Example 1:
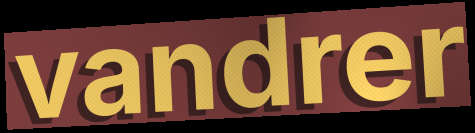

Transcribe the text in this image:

vandrer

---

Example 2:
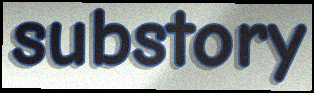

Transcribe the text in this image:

substory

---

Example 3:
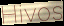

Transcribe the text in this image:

Hivos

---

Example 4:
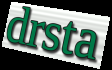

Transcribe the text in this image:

drsta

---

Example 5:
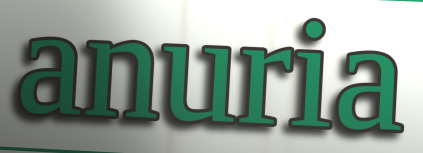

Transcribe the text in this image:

anuria